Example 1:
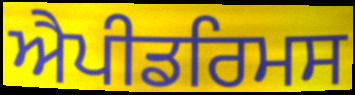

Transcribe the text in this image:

ਐਪੀਡਰਿਮਸ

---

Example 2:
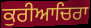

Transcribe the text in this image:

ਕੁਰੀਆਚਿਰਾ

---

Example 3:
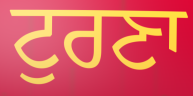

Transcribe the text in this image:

ਟੁਰਣਾ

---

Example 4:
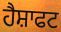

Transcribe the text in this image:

ਹੈਸ਼ਾਫਟ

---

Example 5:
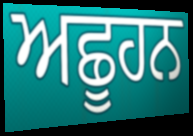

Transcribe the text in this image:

ਅਛੂਹਨ